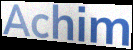
Achim